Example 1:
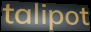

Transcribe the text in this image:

talipot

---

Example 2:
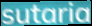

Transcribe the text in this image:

sutaria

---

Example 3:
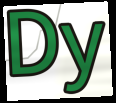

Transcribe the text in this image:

Dy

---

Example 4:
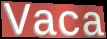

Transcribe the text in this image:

Vaca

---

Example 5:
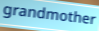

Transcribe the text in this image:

grandmother